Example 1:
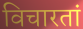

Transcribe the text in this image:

विचारतां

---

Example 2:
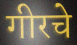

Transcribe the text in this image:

गीरचे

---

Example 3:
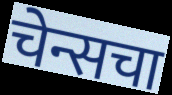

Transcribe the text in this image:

चेन्सचा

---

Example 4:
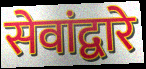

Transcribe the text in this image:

सेवांद्वारे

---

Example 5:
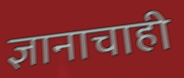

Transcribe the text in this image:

ज्ञानाचाही